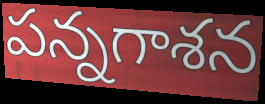
పన్నగాశన